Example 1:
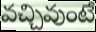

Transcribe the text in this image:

వచ్చివుంటే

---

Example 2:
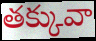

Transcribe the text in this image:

తక్కువా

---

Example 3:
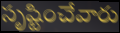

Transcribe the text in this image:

సృష్టించేవారు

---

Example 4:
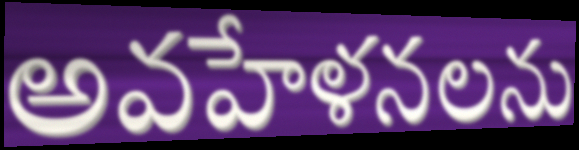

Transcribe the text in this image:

అవహేళనలను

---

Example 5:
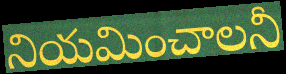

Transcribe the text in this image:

నియమించాలనీ